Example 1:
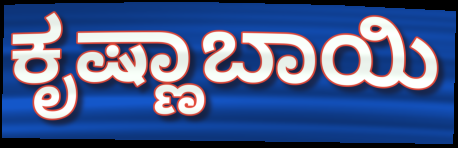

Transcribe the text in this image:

ಕೃಷ್ಣಾಬಾಯಿ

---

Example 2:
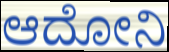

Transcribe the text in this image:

ಆದೋನಿ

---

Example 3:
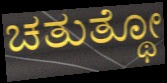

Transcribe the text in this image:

ಚತುತ್ಥೋ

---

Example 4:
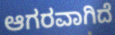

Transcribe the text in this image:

ಆಗರವಾಗಿದೆ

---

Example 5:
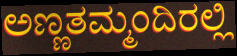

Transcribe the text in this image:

ಅಣ್ಣತಮ್ಮಂದಿರಲ್ಲಿ